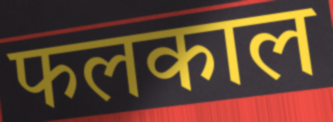
फलकाल